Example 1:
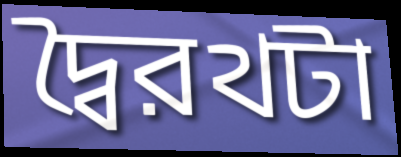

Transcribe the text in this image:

দ্বৈরথটা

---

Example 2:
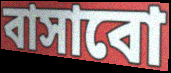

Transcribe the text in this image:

বাসাবো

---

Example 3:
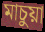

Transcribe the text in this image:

মাচুয়া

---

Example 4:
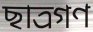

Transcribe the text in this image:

ছাত্রগণ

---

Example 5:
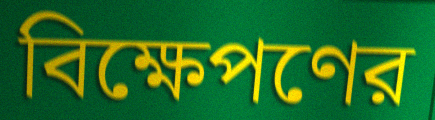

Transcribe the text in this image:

বিক্ষেপণের